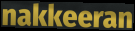
nakkeeran